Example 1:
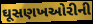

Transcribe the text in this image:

ઘૂસણખઓરીની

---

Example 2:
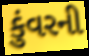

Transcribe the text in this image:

કુંવરની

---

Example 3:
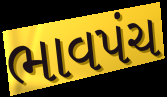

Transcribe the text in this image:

ભાવપંચ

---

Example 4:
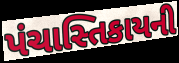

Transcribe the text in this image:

પંચાસ્તિકાયની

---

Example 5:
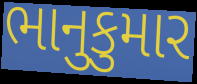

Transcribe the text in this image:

ભાનુકુમાર